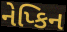
નેપ્કિન